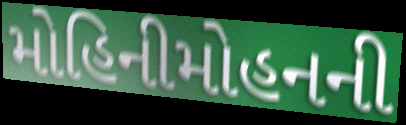
મોહિનીમોહનની